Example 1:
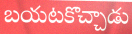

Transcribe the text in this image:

బయటకొచ్చాడు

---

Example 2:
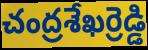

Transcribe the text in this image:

చంద్రశేఖర్రెడ్డి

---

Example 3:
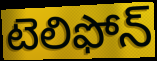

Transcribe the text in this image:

టెలిఫోన్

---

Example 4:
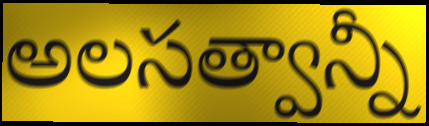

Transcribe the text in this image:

అలసత్వాన్నీ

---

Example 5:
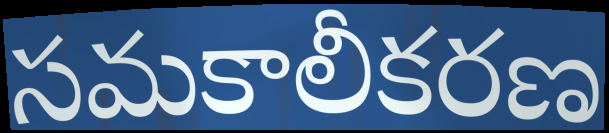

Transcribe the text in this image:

సమకాలీకరణ